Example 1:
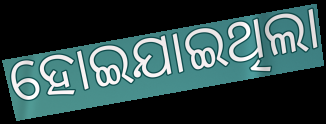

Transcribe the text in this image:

ହୋଇଯାଇଥିଲା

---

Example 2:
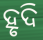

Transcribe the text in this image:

ହୃଦି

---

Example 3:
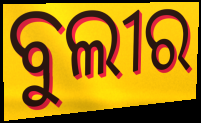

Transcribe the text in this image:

ବୁଲୀର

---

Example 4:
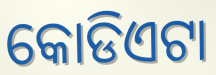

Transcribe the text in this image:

କୋଡିଏଟା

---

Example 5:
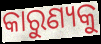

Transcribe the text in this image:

କାରୁଣ୍ୟକୁ